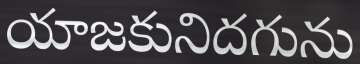
యాజకునిదగును